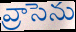
వ్రాసెను